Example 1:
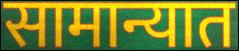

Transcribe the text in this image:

सामान्यात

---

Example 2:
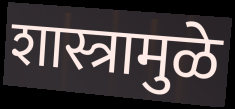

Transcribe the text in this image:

शास्त्रामुळे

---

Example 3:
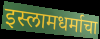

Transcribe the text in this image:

इस्लामधर्माचा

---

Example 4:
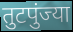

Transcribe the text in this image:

तुटपुंज्या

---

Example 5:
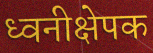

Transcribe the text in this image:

ध्वनीक्षेपक